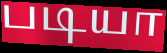
படியா